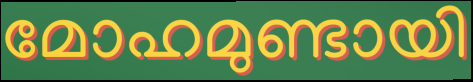
മോഹമുണ്ടായി